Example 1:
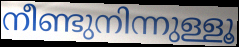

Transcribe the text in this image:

നീണ്ടുനിന്നുള്ളൂ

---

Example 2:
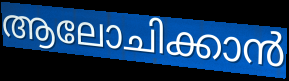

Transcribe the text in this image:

ആലോചിക്കാൻ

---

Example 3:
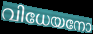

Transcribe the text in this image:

വിധേയനോ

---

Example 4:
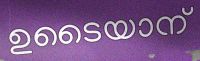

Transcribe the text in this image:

ഉടൈയാന്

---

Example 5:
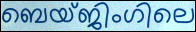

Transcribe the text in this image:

ബെയ്ജിംഗിലെ